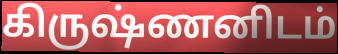
கிருஷ்ணனிடம்